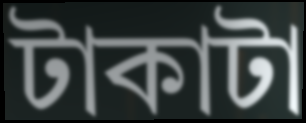
টাকাটা